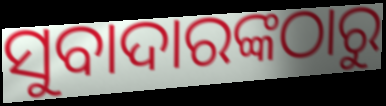
ସୁବାଦାରଙ୍କଠାରୁ